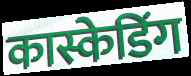
कास्केडिंग